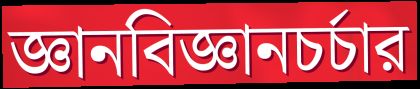
জ্ঞানবিজ্ঞানচর্চার